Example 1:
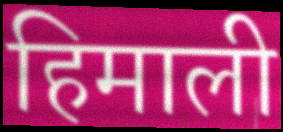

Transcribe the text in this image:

हिमाली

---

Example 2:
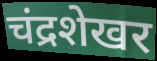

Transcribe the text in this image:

चंद्रशेखर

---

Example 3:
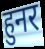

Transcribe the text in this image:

हुनर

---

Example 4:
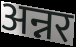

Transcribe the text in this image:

अन्नर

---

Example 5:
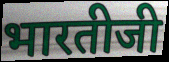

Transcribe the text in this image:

भारतीजी